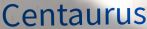
Centaurus